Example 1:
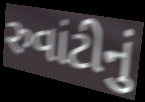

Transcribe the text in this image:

રુવાંટીનું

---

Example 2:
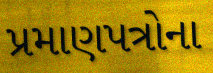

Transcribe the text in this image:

પ્રમાણપત્રોના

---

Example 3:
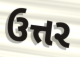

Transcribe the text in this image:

ઉત્તર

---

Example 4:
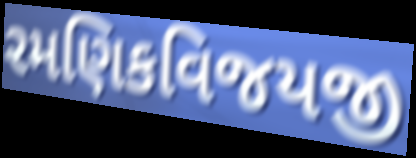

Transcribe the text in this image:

રમણિકવિજયજી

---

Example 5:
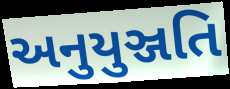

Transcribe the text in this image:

અનુયુઞ્જતિ